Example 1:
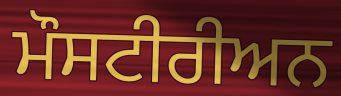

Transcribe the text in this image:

ਮੌਸਟੀਰੀਅਨ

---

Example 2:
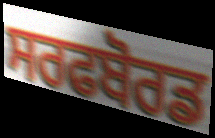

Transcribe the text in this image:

ਸਰਫਬੋਰਡ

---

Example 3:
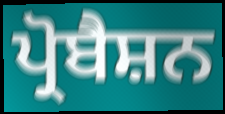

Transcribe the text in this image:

ਪ੍ਰੋਬੈਸ਼ਨ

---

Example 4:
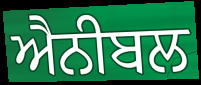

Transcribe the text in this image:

ਐਨੀਬਲ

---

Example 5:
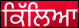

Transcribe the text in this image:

ਕਿੱਲਿਆ